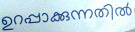
ഉറപ്പാക്കുന്നതിൽ